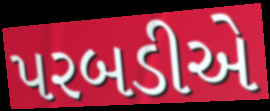
પરબડીએ